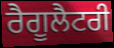
ਰੈਗੂਲੈਟਰੀ